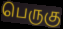
பெருகு